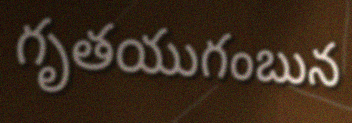
గృతయుగంబున